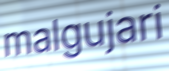
malgujari